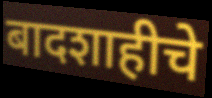
बादशाहीचे